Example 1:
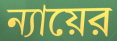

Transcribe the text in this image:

ন্যায়ের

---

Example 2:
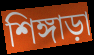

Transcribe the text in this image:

শিঙ্গাড়া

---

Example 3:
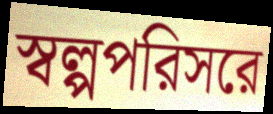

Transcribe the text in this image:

স্বল্পপরিসরে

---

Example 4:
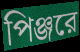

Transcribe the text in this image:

পিঞ্জরে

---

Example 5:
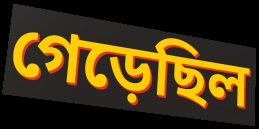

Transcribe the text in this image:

গেড়েছিল